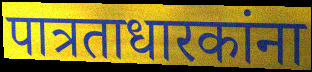
पात्रताधारकांना